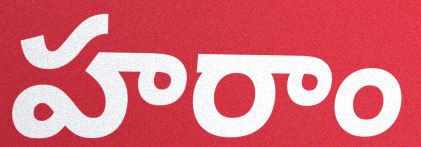
హరాం